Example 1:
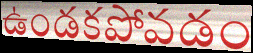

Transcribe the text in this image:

ఉండకపోవడం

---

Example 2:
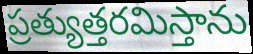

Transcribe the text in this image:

ప్రత్యుత్తరమిస్తాను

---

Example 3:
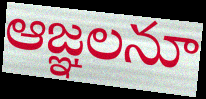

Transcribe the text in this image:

ఆజ్ఞలనూ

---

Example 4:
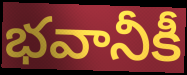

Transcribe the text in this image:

భవానీకీ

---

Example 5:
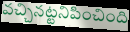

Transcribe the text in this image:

వచ్చినట్టనిపించింది